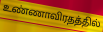
உண்ணாவிரதத்தில்